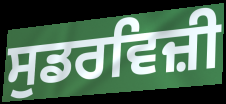
ਸੁਡਰਵਿਜ਼ੀ